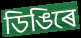
ডিঙিৰে